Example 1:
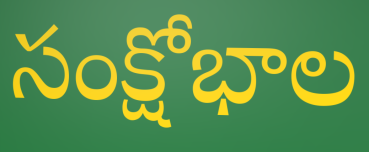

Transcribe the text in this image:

సంక్షోభాల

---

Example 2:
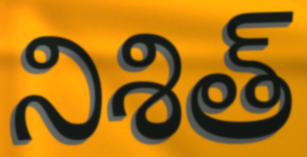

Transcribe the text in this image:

నిశిత్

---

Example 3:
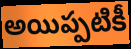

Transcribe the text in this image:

అయిప్పటికీ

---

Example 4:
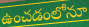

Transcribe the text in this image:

ఉంచడంలోనూ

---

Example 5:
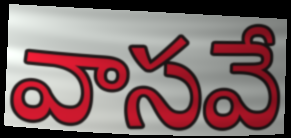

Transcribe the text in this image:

వాసవే